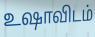
உஷாவிடம்